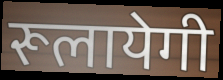
रूलायेगी